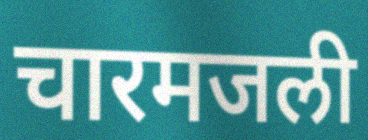
चारमजली